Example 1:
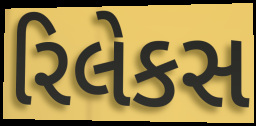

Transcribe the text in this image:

રિલેકસ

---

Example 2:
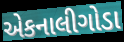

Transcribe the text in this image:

એકનાલીગોડા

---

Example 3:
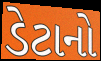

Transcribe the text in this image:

ડેટાનો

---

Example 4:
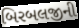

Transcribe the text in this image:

બિરબલજીની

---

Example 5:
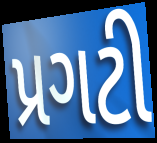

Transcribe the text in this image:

પ્રગટી